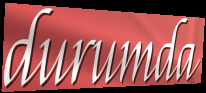
durumda